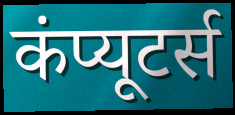
कंप्यूटर्स